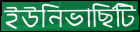
ইউনিভাৰ্ছিটি